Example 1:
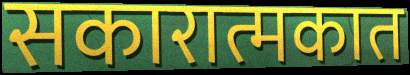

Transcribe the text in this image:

सकारात्मकात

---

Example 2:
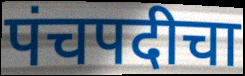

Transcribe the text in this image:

पंचपदीचा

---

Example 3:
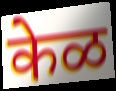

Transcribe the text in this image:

केळ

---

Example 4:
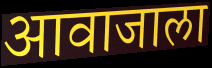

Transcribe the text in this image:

आवाजाला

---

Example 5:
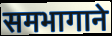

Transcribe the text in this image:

समभागाने